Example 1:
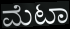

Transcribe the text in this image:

ಮೆಟಾ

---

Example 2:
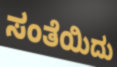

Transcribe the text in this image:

ಸಂತೆಯಿದು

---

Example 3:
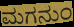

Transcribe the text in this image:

ಮಗನುಂ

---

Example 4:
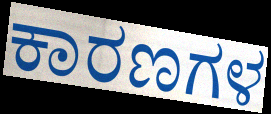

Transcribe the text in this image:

ಕಾರಣಗಳ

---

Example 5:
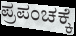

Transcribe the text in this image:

ಪ್ರಪಂಚಕ್ಕೆ